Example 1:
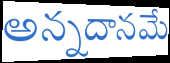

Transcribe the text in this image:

అన్నదానమే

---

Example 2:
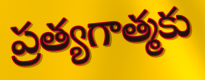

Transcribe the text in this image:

ప్రత్యగాత్మకు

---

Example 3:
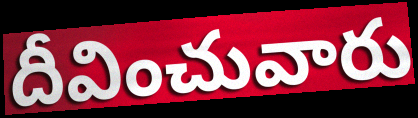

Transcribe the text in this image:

దీవించువారు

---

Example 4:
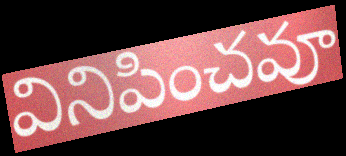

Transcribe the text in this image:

వినిపించవూ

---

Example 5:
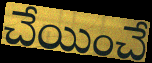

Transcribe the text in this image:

చేయించే